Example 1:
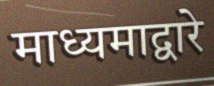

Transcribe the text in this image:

माध्यमाद्वारे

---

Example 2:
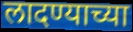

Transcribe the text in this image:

लादण्याच्या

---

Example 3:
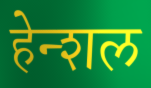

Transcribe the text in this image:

हेन्शल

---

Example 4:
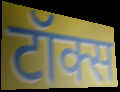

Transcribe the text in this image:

टॉक्स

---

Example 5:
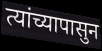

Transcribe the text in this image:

त्यांच्यापासुन